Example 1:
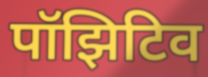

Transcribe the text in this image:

पॉझिटिव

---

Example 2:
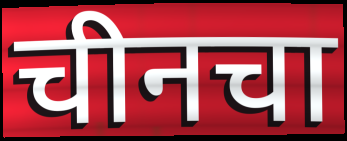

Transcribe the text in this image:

चीनचा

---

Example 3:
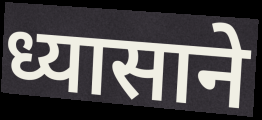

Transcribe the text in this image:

ध्यासाने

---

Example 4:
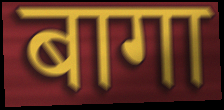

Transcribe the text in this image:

बागा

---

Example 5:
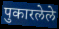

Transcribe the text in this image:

पुकारलेले